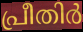
പ്രീതിർ